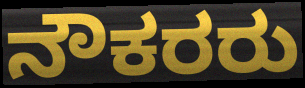
ನೌಕರರು